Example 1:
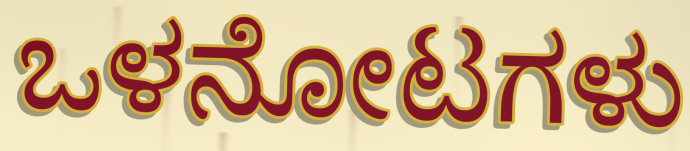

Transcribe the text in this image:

ಒಳನೋಟಗಳು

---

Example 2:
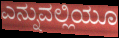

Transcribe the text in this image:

ಎನ್ನುವಲ್ಲಿಯೂ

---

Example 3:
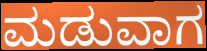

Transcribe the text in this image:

ಮಡುವಾಗ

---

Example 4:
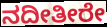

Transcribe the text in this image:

ನದೀತೀರೇ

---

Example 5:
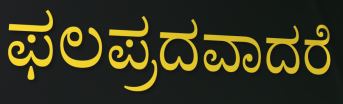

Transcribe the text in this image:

ಫಲಪ್ರದವಾದರೆ